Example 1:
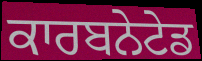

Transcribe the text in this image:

ਕਾਰਬਨੇਟੇਡ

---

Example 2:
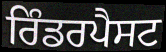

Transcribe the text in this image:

ਰਿੰਡਰਪੈਸਟ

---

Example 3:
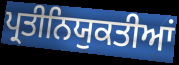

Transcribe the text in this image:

ਪ੍ਰਤੀਨਿਯੁਕਤੀਆਂ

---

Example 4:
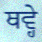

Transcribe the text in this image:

ਥਵ੍ਹੇ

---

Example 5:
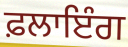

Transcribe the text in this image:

ਫ਼ਲਾਇੰਗ